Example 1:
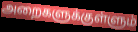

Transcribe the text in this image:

அறைகளுக்குள்ளும்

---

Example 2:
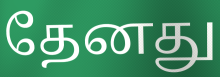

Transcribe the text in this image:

தேனது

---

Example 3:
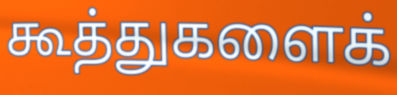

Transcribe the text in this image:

கூத்துகளைக்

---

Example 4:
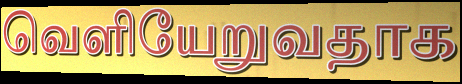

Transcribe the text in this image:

வெளியேறுவதாக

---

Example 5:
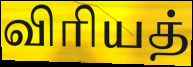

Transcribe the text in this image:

விரியத்